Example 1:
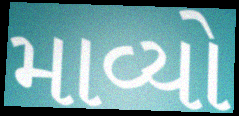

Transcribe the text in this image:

માવ્યો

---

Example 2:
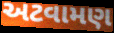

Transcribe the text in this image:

અટવામણ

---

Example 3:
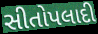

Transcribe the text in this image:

સીતોપલાદી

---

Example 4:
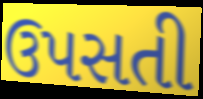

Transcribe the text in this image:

ઉપસતી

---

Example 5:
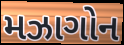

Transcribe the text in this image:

મઝાગોન